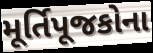
મૂર્તિપૂજકોના